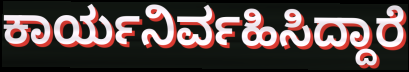
ಕಾರ್ಯನಿರ್ವಹಿಸಿದ್ದಾರೆ